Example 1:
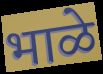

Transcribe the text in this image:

भाळे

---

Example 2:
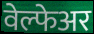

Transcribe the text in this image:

वेल्फेअर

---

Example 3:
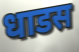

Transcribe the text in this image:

धाडस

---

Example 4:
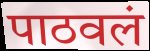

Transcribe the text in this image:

पाठवलं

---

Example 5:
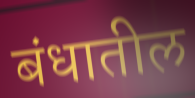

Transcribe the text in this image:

बंधातील